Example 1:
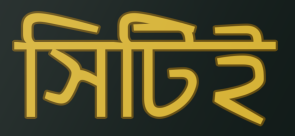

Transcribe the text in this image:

সিটিই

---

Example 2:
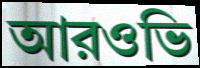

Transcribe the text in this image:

আরওভি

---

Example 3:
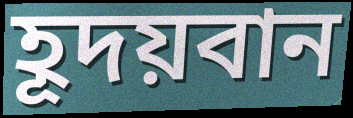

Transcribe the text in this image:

হূদয়বান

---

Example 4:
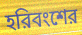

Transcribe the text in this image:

হরিবংশের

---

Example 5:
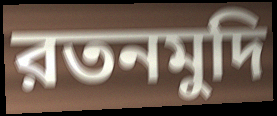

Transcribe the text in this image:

রতনমুদি